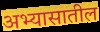
अभ्यासातील